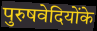
पुरुषवेदियोंके